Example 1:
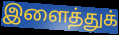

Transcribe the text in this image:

இளைத்துக்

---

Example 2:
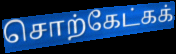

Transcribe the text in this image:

சொற்கேட்கக்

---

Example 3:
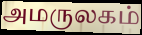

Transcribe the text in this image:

அமருலகம்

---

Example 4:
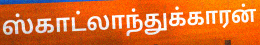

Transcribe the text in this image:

ஸ்காட்லாந்துக்காரன்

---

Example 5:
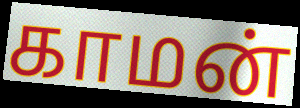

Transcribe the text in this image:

காமன்